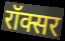
रॉक्सर